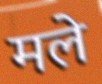
मले